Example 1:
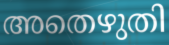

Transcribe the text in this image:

അതെഴുതി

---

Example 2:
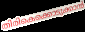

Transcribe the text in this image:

തിരികെക്കൊടുക്കാൻ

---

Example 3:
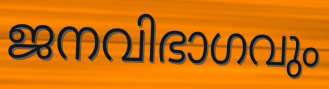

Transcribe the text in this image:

ജനവിഭാഗവും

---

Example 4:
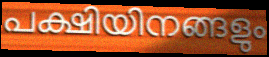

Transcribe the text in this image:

പക്ഷിയിനങ്ങളും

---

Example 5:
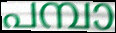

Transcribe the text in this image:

പമ്പാ